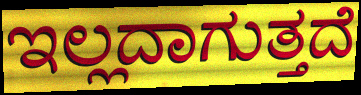
ಇಲ್ಲದಾಗುತ್ತದೆ